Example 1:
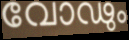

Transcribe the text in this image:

വോഢും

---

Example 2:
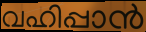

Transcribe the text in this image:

വഹിപ്പാൻ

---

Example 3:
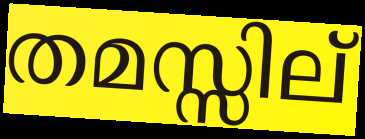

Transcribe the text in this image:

തമസ്സില്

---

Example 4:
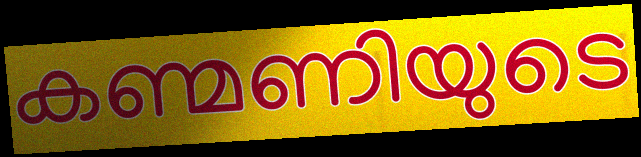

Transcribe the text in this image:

കണ്മണിയുടെ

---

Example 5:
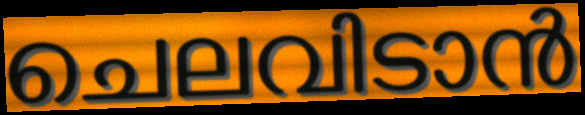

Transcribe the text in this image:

ചെലവിടാൻ